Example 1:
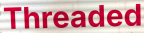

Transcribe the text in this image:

Threaded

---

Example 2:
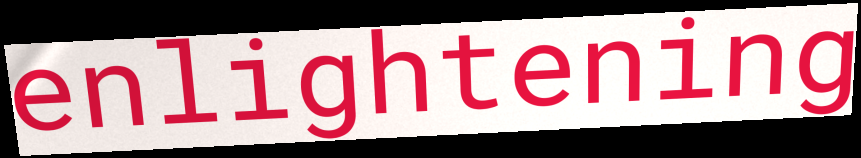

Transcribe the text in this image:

enlightening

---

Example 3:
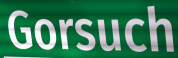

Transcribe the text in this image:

Gorsuch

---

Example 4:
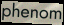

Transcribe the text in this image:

phenom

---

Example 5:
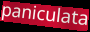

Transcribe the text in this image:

paniculata